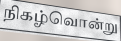
நிகழ்வொன்று